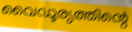
വൈഡൂര്യത്തിന്റെ